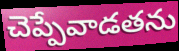
చెప్పేవాడతను